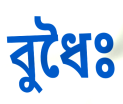
বুধৈঃ